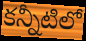
కన్నీటిలో